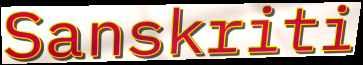
Sanskriti